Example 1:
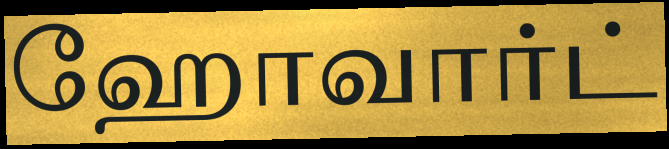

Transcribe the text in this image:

ஹோவார்ட்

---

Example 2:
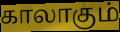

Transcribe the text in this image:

காலாகும்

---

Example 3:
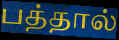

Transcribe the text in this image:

பத்தால்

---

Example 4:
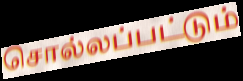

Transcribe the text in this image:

சொல்லப்பட்டும்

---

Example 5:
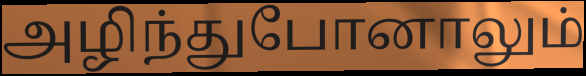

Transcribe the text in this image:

அழிந்துபோனாலும்